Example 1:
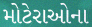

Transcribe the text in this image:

મોટેરાઓના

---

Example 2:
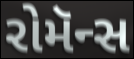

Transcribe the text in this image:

રોમૅન્સ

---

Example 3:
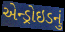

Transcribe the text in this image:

એન્ડ્રોઇડનું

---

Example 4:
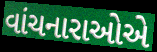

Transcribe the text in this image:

વાંચનારાઓએ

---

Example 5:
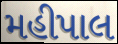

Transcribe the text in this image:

મહીપાલ